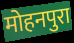
मोहनपुरा